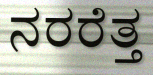
ನರರೆತ್ತ